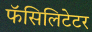
फॅसिलिटेटर